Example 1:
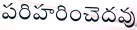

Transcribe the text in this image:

పరిహరించెదవు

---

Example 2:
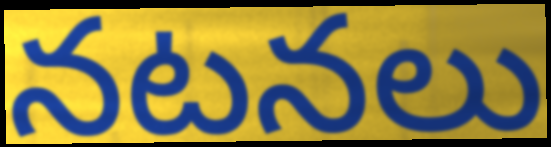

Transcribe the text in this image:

నటనలు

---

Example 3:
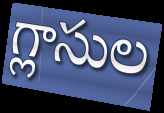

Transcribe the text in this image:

గ్లాసుల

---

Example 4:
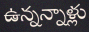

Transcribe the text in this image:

ఉన్నన్నాళ్లు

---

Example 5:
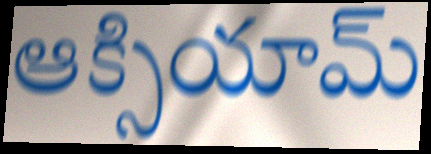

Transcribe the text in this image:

ఆక్సియామ్